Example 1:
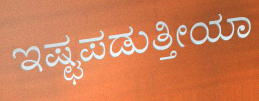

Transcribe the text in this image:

ಇಷ್ಟಪಡುತ್ತೀಯಾ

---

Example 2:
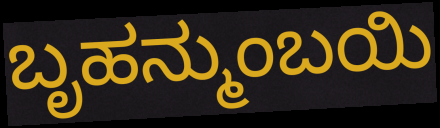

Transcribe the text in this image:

ಬೃಹನ್ಮುಂಬಯಿ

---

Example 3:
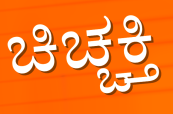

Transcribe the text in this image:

ಚಿಚ್ಚಕ್ತಿ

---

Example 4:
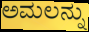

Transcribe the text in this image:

ಅಮಲನ್ನು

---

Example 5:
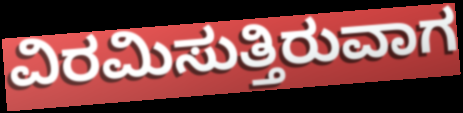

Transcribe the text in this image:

ವಿರಮಿಸುತ್ತಿರುವಾಗ